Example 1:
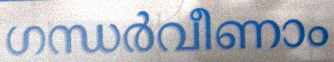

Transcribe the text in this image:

ഗന്ധർവീണാം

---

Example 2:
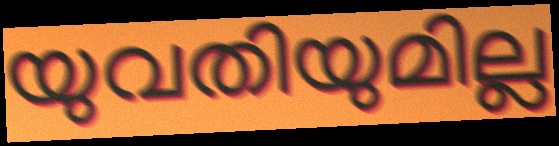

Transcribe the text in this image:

യുവതിയുമില്ല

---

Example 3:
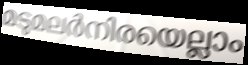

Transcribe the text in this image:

മടുമലർനിരയെല്ലാം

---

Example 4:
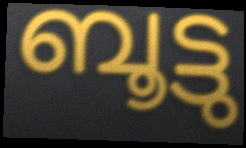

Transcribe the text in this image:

ബൂട്ടു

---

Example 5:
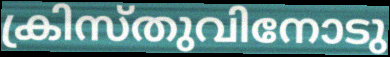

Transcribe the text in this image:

ക്രിസ്തുവിനോടു